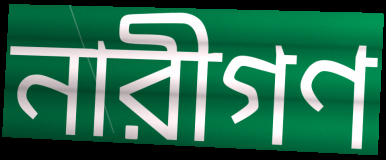
নারীগণ